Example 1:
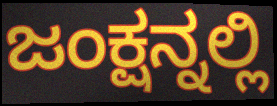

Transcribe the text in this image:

ಜಂಕ್ಷನ್ನಲ್ಲಿ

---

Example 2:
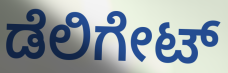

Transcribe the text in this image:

ಡೆಲಿಗೇಟ್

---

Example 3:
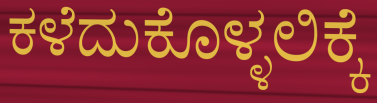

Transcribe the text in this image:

ಕಳೆದುಕೊಳ್ಳಲಿಕ್ಕೆ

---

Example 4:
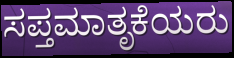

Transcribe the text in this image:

ಸಪ್ತಮಾತೃಕೆಯರು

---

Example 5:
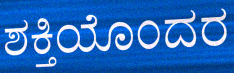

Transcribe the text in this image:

ಶಕ್ತಿಯೊಂದರ